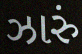
ઝારું